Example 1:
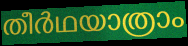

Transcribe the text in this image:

തീർഥയാത്രാം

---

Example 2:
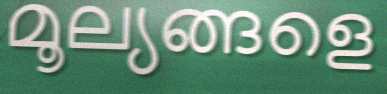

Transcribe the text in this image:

മൂല്യങ്ങളെ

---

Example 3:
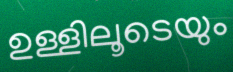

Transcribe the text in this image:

ഉള്ളിലൂടെയും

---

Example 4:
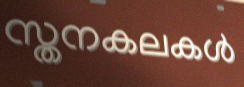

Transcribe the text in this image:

സ്തനകലകൾ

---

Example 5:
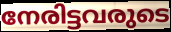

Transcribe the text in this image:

നേരിട്ടവരുടെ